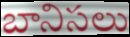
బానిసలు